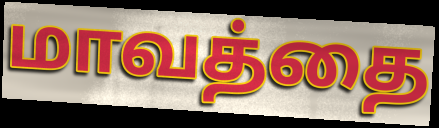
மாவத்தை